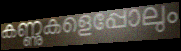
കണ്ണുകളെപ്പോലും